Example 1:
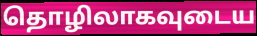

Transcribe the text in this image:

தொழிலாகவுடைய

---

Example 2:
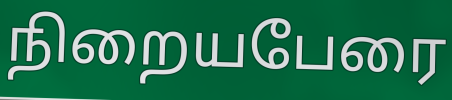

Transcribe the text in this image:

நிறையபேரை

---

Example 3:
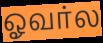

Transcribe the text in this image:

ஓவர்ல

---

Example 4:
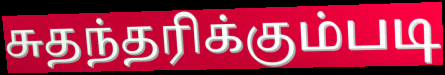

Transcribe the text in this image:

சுதந்தரிக்கும்படி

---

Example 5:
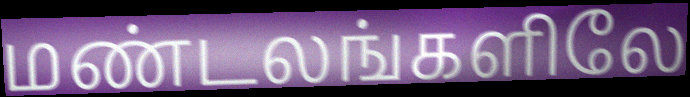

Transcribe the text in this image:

மண்டலங்களிலே